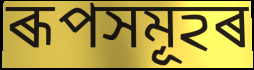
ৰূপসমূহৰ